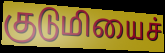
குடுமியைச்